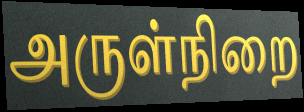
அருள்நிறை